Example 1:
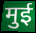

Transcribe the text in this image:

मुई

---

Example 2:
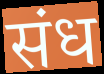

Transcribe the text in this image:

संध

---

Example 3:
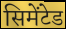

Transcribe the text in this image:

सिमेंटेड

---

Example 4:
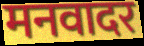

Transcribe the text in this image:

मनवादर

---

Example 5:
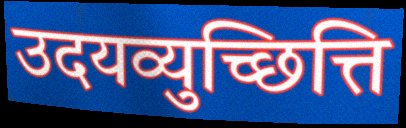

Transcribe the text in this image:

उदयव्युच्छित्ति